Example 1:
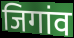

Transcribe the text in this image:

जिगांव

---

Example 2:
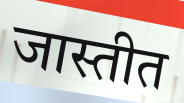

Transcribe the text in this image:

जास्तीत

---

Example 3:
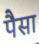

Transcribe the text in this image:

पैसा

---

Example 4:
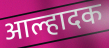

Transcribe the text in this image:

आल्हादक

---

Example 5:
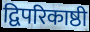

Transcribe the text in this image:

द्विपरिकाष्ठी